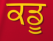
ਕਡੂ